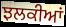
ਝਲਕੀਆਂ